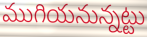
ముగియనున్నట్టు